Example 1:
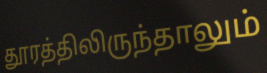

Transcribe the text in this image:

தூரத்திலிருந்தாலும்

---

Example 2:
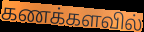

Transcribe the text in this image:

கணக்களவில்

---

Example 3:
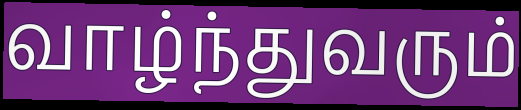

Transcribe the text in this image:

வாழ்ந்துவரும்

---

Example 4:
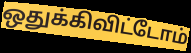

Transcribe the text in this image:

ஒதுக்கிவிட்டோம்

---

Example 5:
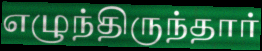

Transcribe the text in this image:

எழுந்திருந்தார்